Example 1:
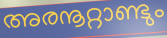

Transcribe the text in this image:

അരനൂറ്റാണ്ടും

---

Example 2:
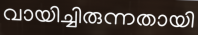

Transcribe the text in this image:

വായിച്ചിരുന്നതായി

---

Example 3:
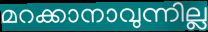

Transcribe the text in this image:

മറക്കാനാവുന്നില്ല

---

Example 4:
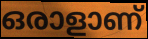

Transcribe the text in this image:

ഒരാളാണ്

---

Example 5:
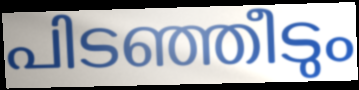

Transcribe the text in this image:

പിടഞ്ഞീടും